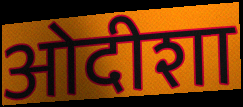
ओदीशा